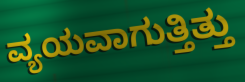
ವ್ಯಯವಾಗುತ್ತಿತ್ತು